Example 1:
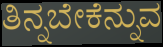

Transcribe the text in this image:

ತಿನ್ನಬೇಕೆನ್ನುವ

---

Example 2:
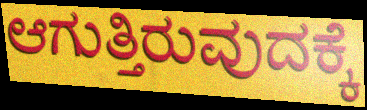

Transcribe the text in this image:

ಆಗುತ್ತಿರುವುದಕ್ಕೆ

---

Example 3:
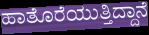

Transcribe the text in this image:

ಹಾತೊರೆಯುತ್ತಿದ್ದಾನೆ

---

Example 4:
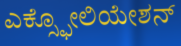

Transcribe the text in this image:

ಎಕ್ಸ್ಫೋಲಿಯೇಶನ್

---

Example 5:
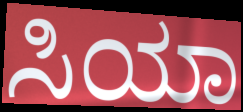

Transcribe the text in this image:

ಸಿಯಾ